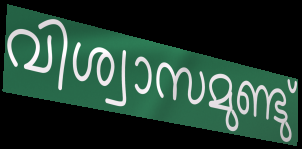
വിശ്വാസമുണ്ടു്